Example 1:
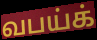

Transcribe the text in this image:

வபய்க்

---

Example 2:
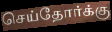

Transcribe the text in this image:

செய்தோர்க்கு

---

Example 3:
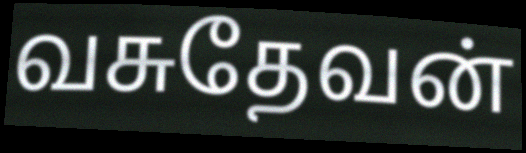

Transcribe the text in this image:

வசுதேவன்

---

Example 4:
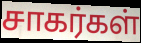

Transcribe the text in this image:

சாகர்கள்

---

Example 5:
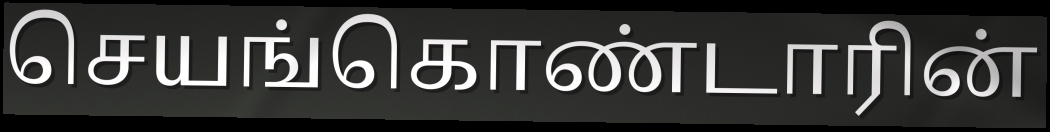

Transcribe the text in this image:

செயங்கொண்டாரின்